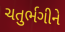
ચતુર્ભગીને